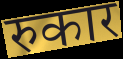
रुकार